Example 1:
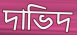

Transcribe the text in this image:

দাভিদ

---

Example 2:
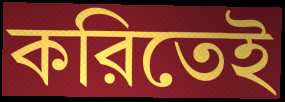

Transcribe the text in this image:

করিতেই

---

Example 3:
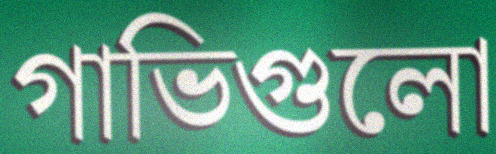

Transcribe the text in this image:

গাভিগুলো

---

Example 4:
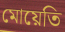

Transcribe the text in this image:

মোয়েতি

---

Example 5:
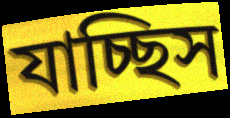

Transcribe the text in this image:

যাচ্ছিস